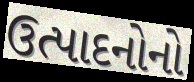
ઉત્પાદનોનો